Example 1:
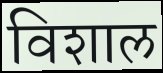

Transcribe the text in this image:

विशाल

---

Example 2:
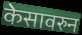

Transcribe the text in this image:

केसावरुन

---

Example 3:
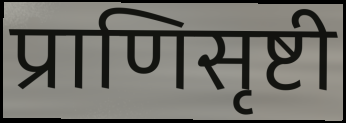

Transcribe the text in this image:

प्राणिसृष्टी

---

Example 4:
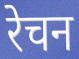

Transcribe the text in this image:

रेचन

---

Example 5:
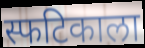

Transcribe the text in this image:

स्फटिकाला